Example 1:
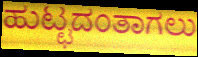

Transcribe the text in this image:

ಹುಟ್ಟದಂತಾಗಲು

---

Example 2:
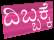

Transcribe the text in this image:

ದಿಬ್ಬಕ್ಕೆ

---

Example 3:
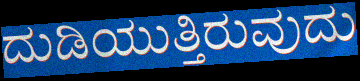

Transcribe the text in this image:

ದುಡಿಯುತ್ತಿರುವುದು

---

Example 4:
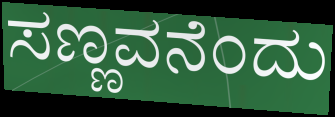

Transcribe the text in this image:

ಸಣ್ಣವನೆಂದು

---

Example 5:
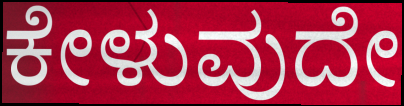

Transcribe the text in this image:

ಕೇಳುವುದೇ